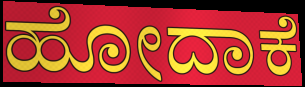
ಹೋದಾಕೆ